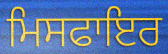
ਮਿਸਫਾਇਰ